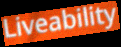
Liveability